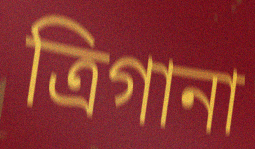
ত্রিগানা